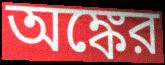
অঙ্কের